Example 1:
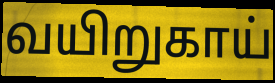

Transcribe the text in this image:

வயிறுகாய்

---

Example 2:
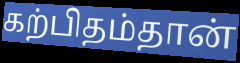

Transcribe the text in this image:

கற்பிதம்தான்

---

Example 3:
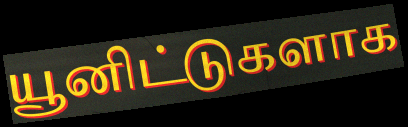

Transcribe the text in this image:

யூனிட்டுகளாக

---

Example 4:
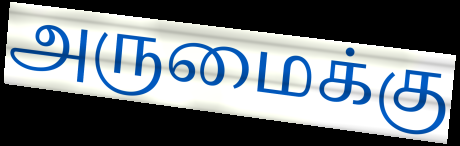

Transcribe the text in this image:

அருமைக்கு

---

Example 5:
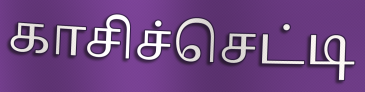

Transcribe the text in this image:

காசிச்செட்டி